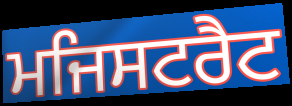
ਮਜਿਸਟਰੈਟ